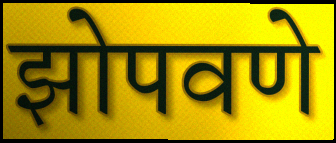
झोपवणे